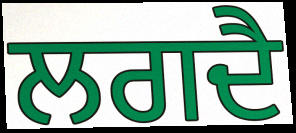
ਲਗਦੈ